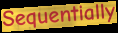
Sequentially